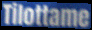
Tilottame